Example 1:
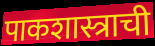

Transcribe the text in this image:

पाकशास्त्राची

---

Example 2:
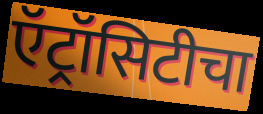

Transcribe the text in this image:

ऍट्रॉसिटीचा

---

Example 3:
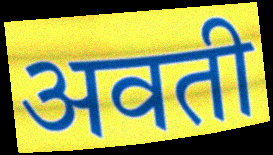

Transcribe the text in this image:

अवती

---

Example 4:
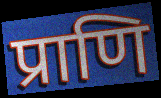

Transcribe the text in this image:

प्राणि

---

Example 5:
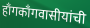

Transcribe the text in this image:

हाँगकाँगवासीयांची